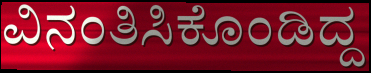
ವಿನಂತಿಸಿಕೊಂಡಿದ್ದ